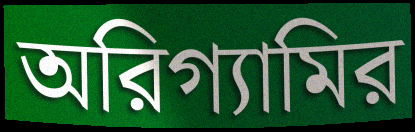
অরিগ্যামির